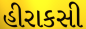
હીરાકસી